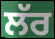
ਲੱਰ